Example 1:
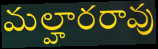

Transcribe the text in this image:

మల్హారరావు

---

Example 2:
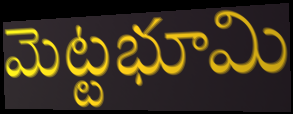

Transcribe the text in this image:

మెట్టభూమి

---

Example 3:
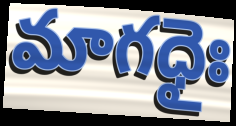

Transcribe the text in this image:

మాగధైః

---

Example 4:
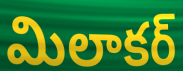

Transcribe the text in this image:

మిలాకర్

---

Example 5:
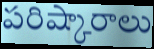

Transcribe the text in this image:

పరిష్కారాలు